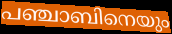
പഞ്ചാബിനെയും